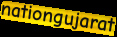
nationgujarat